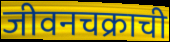
जीवनचक्राची